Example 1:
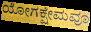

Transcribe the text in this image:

ಯೋಗಕ್ಷೇಮವೂ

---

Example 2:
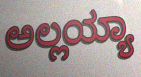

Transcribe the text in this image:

ಅಲ್ಲಯ್ಯಾ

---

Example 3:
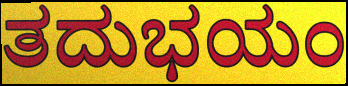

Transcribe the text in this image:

ತದುಭಯಂ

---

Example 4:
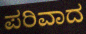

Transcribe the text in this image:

ಪರಿವಾದ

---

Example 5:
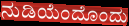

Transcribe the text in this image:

ನುಡಿಯೆಂದೊಂದು